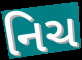
નિચ